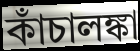
কাঁচালঙ্কা